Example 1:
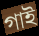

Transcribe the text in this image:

গাই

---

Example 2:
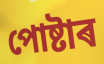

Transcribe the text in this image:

পোষ্টাৰ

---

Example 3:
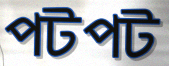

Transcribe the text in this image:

পটপট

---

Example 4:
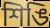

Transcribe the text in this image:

শিঙি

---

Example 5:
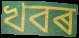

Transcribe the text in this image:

খবৰ